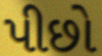
પીછો